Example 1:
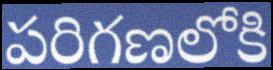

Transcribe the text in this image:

పరిగణలోకి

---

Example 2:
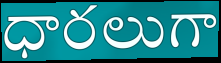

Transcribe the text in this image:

ధారలుగా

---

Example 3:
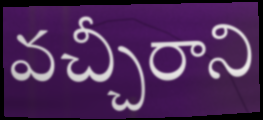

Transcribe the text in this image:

వచ్చీరాని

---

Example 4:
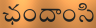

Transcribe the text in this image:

ఛందాంసి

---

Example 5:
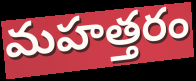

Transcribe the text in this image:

మహత్తరం